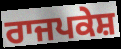
ਰਾਜਪਕੇਸ਼